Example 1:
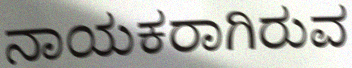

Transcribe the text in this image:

ನಾಯಕರಾಗಿರುವ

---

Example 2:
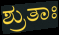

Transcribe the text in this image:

ಶ್ರುತಾಃ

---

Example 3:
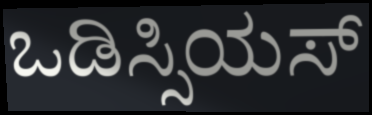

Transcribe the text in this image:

ಒಡಿಸ್ಸಿಯಸ್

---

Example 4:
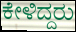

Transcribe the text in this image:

ಕೇಳಿದ್ದರು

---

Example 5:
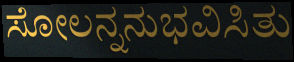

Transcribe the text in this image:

ಸೋಲನ್ನನುಭವಿಸಿತು